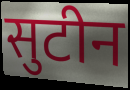
सुटीन